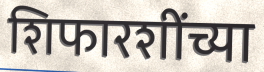
शिफारशींच्या